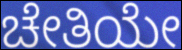
ಚೇತಿಯೇ